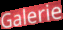
Galerie